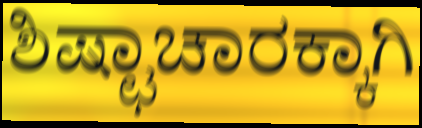
ಶಿಷ್ಟಾಚಾರಕ್ಕಾಗಿ